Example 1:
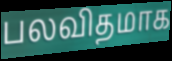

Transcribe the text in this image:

பலவிதமாக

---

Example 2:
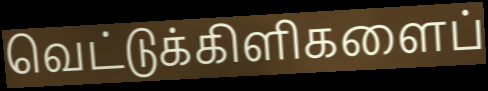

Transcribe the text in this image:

வெட்டுக்கிளிகளைப்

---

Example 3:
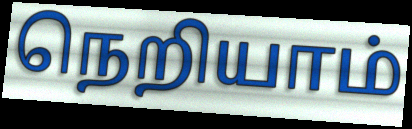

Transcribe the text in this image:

நெறியாம்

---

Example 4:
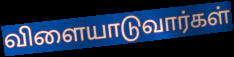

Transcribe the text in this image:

விளையாடுவார்கள்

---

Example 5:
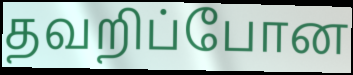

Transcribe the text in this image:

தவறிப்போன